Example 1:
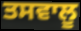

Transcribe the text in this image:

ਤਸਵਾਲੂ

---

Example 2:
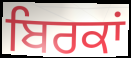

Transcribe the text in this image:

ਬਿਰਕਾਂ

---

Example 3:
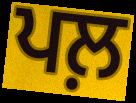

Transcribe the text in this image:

ਪਲ਼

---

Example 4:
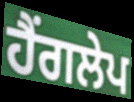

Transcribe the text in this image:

ਹੈਂਗਲੇਪ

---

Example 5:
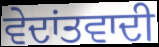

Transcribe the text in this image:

ਵੇਦਾਂਤਵਾਦੀ